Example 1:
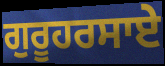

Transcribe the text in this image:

ਗੁਰੂਹਰਸਾਏ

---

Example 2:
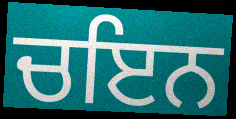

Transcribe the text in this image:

ਚਇਨ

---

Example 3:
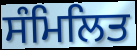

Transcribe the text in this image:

ਸੰਮਿਲਿਤ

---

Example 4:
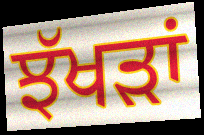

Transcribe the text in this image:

ਝੱਖੜਾਂ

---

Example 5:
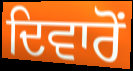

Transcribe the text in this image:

ਦਿਵਾਰੋਂ